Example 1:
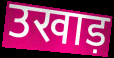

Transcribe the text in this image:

उखाड़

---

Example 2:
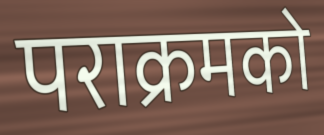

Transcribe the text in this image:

पराक्रमको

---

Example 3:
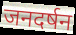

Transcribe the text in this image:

जनदर्षन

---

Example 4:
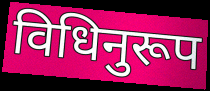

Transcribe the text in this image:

विधिनुरूप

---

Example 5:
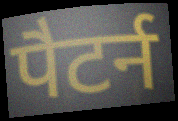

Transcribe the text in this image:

पैटर्न